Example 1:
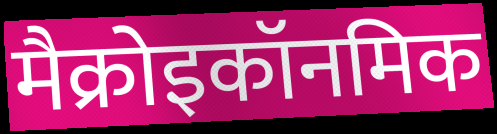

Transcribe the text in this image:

मैक्रोइकॉनमिक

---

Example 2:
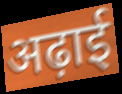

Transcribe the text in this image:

अढ़ाई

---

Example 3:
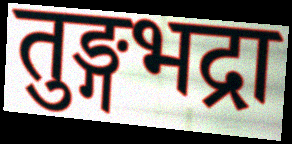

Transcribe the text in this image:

तुङ्गभद्रा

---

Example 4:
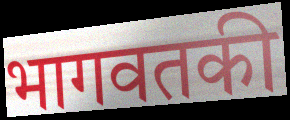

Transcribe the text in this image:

भागवतकी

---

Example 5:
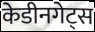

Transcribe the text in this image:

केडीनगेट्स